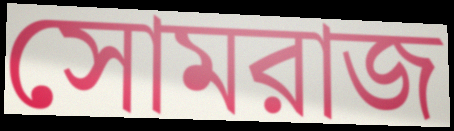
সোমরাজ